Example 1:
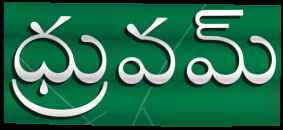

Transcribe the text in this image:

ధ్రువమ్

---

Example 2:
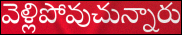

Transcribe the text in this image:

వెళ్లిపోవుచున్నారు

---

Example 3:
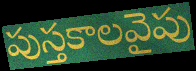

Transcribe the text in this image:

పుస్తకాలవైపు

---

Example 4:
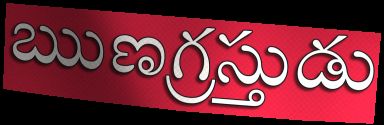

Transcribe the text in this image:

ఋణగ్రస్తుడు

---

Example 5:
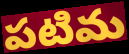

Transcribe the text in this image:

పటిమ